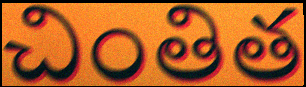
చింతిత